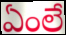
ఏంలే